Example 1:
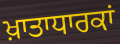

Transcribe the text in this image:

ਖ਼ਾਤਾਧਾਰਕਾਂ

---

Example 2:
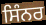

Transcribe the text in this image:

ਸਿੰਨਰ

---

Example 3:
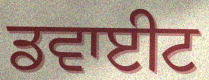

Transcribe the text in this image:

ਡਵਾਈਟ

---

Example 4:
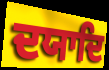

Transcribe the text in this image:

ਦਯਾਦਿ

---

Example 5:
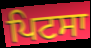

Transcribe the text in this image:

ਪਿਟਸਾ